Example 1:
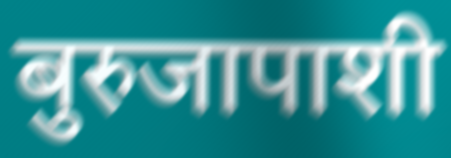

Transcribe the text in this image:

बुरुजापाशी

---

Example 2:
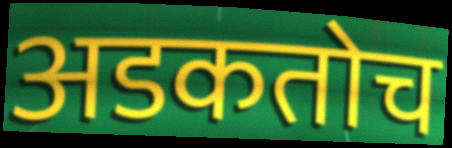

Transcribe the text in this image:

अडकतोच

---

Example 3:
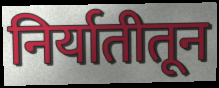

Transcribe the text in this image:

निर्यातीतून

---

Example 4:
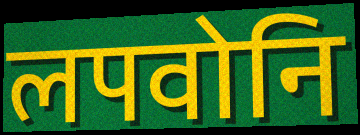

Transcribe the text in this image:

लपवोनि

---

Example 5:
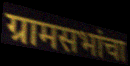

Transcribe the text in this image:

ग्रामसभांचा